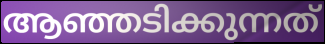
ആഞ്ഞടിക്കുന്നത്